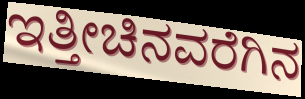
ಇತ್ತೀಚಿನವರೆಗಿನ